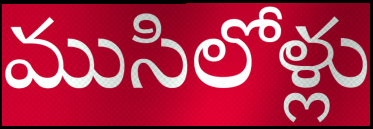
ముసిలోళ్లు